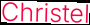
Christel